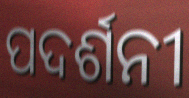
ପଦର୍ଶନୀ